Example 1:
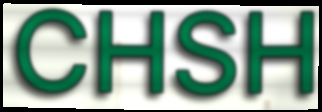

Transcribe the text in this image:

CHSH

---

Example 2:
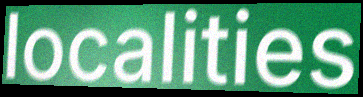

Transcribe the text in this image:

localities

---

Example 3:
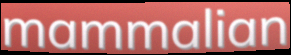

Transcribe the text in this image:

mammalian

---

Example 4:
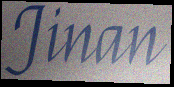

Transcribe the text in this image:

Jinan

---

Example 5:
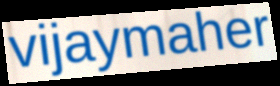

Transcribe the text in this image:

vijaymaher